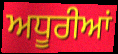
ਅਧੂਰੀਆਂ